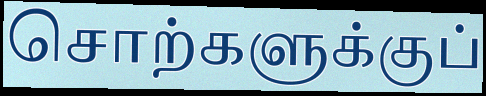
சொற்களுக்குப்